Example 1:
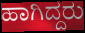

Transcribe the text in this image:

ಹಾಗಿದ್ದರು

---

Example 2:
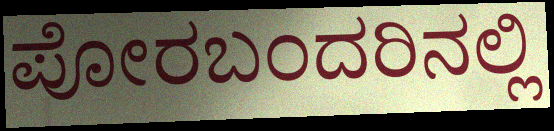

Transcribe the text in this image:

ಪೋರಬಂದರಿನಲ್ಲಿ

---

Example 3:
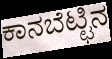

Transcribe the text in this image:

ಕಾನಬೆಟ್ಟಿನ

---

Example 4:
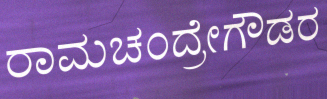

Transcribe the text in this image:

ರಾಮಚಂದ್ರೇಗೌಡರ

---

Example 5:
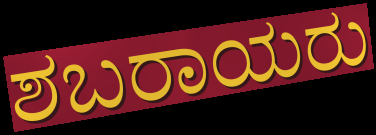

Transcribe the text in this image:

ಶಬರಾಯರು